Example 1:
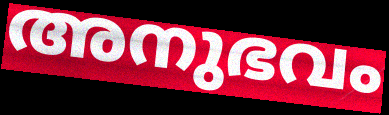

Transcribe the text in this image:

അനുഭവം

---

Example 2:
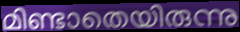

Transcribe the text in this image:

മിണ്ടാതെയിരുന്നു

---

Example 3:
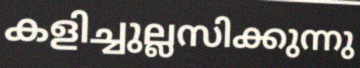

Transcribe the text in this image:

കളിച്ചുല്ലസിക്കുന്നു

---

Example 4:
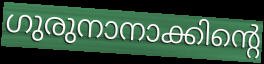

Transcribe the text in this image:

ഗുരുനാനാക്കിന്റെ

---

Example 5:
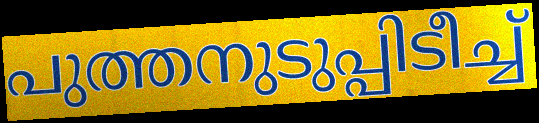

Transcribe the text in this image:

പുത്തനുടുപ്പിടീച്ച്